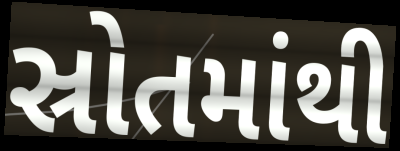
સ્રોતમાંથી